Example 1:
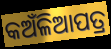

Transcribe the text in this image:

କଅଁଳିଆପତ୍ର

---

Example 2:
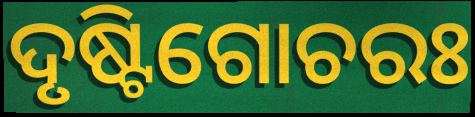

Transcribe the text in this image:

ଦୃଷ୍ଟିଗୋଚରଃ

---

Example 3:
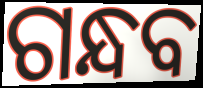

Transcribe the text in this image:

ଗନ୍ଧବ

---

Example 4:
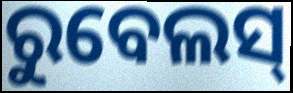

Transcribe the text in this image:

ରୁବେଲସ୍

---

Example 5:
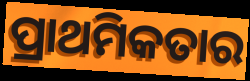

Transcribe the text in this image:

ପ୍ରାଥମିକତାର